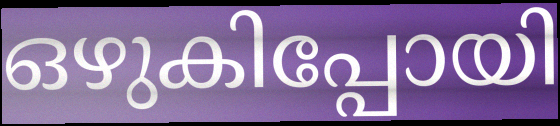
ഒഴുകിപ്പോയി